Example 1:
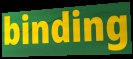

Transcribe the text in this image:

binding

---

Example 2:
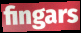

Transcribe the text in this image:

fingars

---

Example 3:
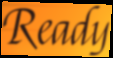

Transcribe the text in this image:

Ready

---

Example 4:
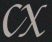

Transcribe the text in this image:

cx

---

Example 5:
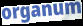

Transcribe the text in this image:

organum